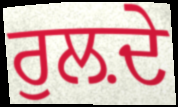
ਰੁਲ਼ਦੇ